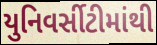
યુનિવર્સીટીમાંથી